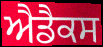
ਐਡੈਕਸ